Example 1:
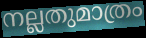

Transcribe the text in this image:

നല്ലതുമാത്രം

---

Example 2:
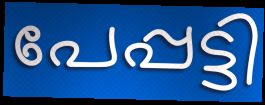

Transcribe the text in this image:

പേപ്പട്ടി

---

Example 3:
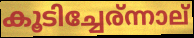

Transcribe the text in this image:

കൂടിച്ചേര്ന്നാല്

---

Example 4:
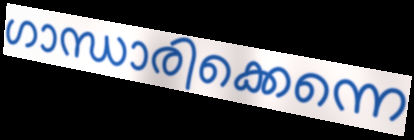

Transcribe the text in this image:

ഗാന്ധാരിക്കെന്നെ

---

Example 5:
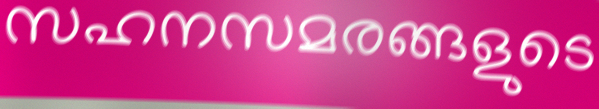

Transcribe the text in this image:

സഹനസമരങ്ങളുടെ